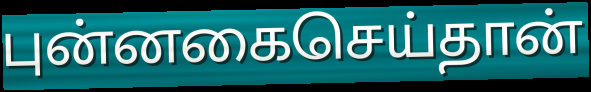
புன்னகைசெய்தான்